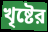
খৃষ্টের